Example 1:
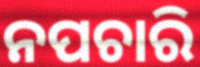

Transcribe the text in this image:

ନପଚାରି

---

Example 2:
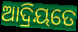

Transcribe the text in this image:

ଆଦ୍ରିୟତେ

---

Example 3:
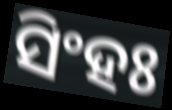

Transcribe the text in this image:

ସିଂହଃ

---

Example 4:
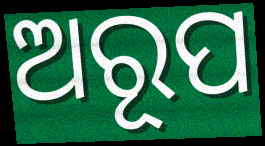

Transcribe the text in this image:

ଅରୂପ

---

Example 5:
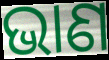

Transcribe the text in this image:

ଭାଣ